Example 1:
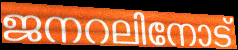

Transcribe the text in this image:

ജനറലിനോട്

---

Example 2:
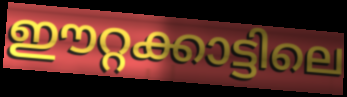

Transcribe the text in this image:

ഈറ്റക്കാട്ടിലെ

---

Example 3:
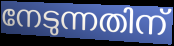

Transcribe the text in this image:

നേടുന്നതിന്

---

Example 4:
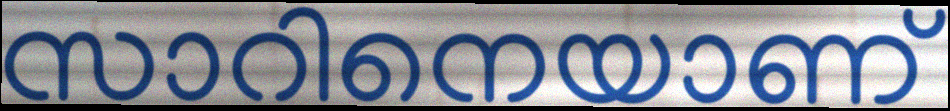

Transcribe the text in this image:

സാറിനെയാണ്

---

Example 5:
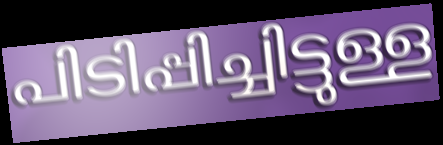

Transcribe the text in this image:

പിടിപ്പിച്ചിട്ടുള്ള